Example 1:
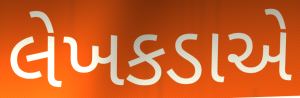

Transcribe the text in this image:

લેખકડાએ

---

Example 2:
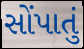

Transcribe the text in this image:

સોંપાતું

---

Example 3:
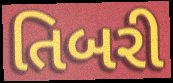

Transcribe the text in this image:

તિબરી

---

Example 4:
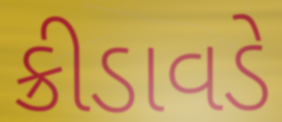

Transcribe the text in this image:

ક્રીડાવડે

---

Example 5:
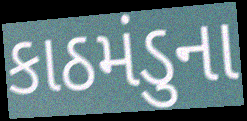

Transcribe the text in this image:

કાઠમંડુના